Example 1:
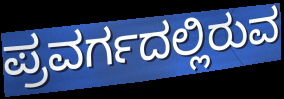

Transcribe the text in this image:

ಪ್ರವರ್ಗದಲ್ಲಿರುವ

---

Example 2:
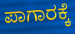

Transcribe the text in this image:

ಪಾಗಾರಕ್ಕೆ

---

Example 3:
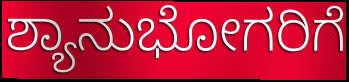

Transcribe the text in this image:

ಶ್ಯಾನುಭೋಗರಿಗೆ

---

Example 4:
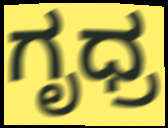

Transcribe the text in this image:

ಗೃಧ್ರ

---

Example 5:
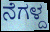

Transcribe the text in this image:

ನೆಗಳ್ದ